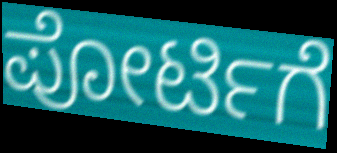
ಪೋರ್ಟಿಗೆ